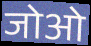
जोओ